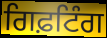
ਗਿਫ਼ਟਿੰਗ